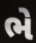
ભે